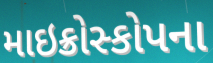
માઇક્રોસ્કોપના